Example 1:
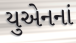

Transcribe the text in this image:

યુએનનાં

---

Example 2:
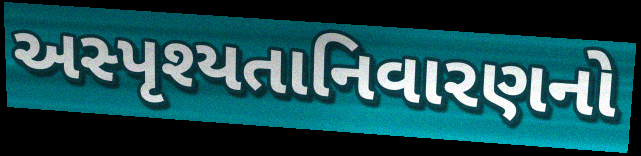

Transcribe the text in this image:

અસ્પૃશ્યતાનિવારણનો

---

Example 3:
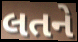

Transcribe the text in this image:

લતને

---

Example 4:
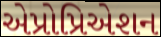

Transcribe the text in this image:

એપ્રોપ્રિએશન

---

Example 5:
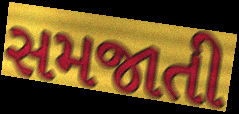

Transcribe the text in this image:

સમજાતી